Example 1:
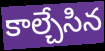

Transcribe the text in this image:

కాల్చేసిన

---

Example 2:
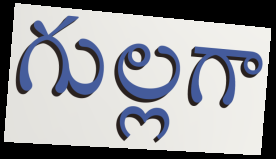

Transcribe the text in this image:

గుల్లగా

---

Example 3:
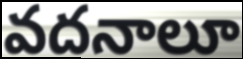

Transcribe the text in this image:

వదనాలూ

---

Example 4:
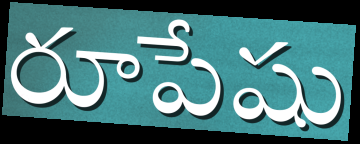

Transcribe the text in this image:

రూపేషు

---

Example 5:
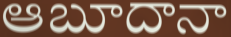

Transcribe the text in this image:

ఆబూదానా